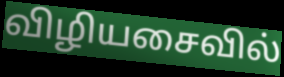
விழியசைவில்